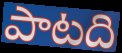
పాటది